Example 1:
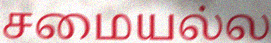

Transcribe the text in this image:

சமையல்ல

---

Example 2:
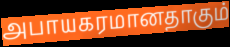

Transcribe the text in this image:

அபாயகரமானதாகும்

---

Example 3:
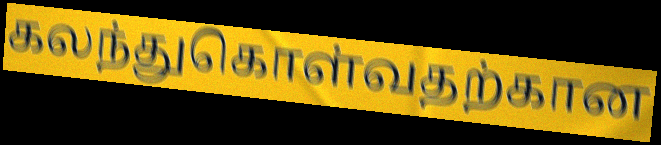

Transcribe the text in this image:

கலந்துகொள்வதற்கான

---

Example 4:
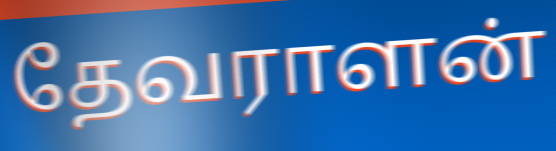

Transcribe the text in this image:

தேவராளன்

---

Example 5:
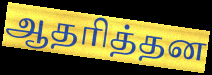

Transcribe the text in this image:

ஆதரித்தன